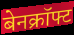
बेनक्रॉफ्ट